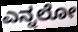
ಎನ್ನಲೋ